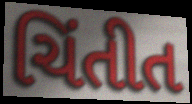
ચિંતીત